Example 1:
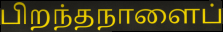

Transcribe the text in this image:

பிறந்தநாளைப்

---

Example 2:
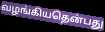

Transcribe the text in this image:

வழங்கியதென்பது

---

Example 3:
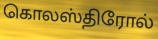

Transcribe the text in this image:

கொலஸ்திரோல்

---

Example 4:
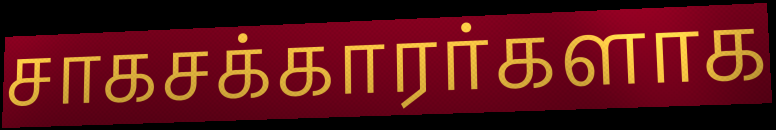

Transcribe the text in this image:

சாகசக்காரர்களாக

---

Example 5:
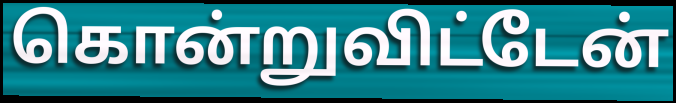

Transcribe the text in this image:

கொன்றுவிட்டேன்